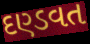
દણ્ડવત